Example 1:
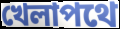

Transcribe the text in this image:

খেলাপথে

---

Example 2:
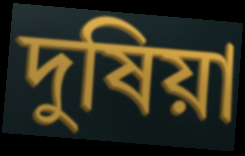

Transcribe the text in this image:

দুষিয়া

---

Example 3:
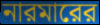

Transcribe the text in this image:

নারমারের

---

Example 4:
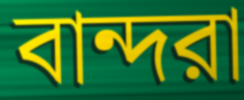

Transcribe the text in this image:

বান্দরা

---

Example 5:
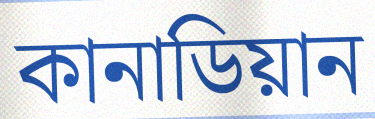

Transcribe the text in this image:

কানাডিয়ান